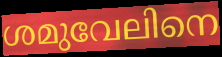
ശമുവേലിനെ